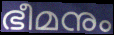
ഭീമനും